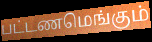
பட்டணமெங்கும்